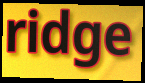
ridge